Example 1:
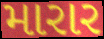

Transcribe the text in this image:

મારાર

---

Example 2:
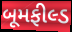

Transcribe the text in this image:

બૂમફીલ્ડ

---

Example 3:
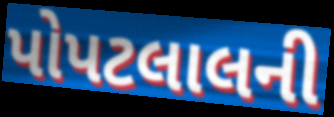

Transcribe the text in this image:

પોપટલાલની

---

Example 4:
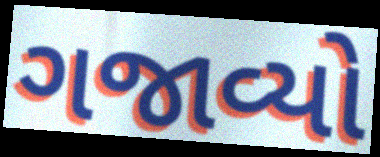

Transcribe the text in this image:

ગજાવ્યો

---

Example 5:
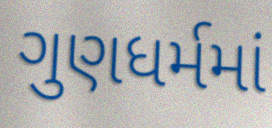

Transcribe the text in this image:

ગુણધર્મમાં